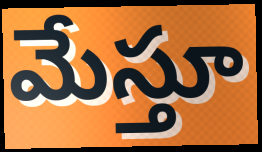
మేస్తూ